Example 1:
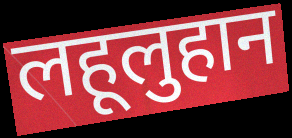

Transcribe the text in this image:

लहूलुहान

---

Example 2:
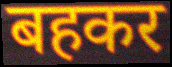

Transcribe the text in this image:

बहकर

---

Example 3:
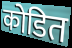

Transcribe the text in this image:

कोडित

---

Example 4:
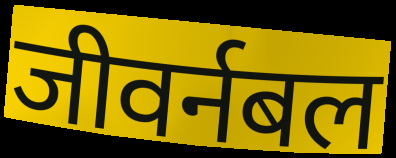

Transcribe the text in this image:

जीवर्नबल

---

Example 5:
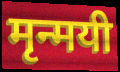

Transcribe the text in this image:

मृन्मयी